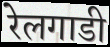
रेलगाडी